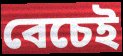
বেচেই